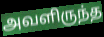
அவளிருந்த